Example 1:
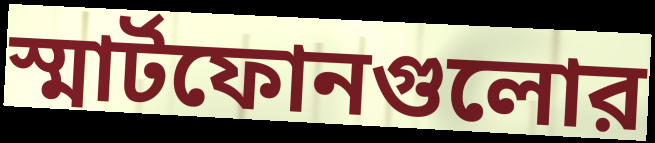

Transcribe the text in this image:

স্মার্টফোনগুলোর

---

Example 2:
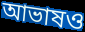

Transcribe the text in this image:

আভাষও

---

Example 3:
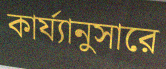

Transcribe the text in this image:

কার্য্যানুসারে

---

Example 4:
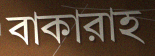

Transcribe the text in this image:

বাকারাহ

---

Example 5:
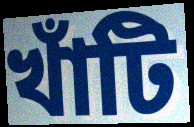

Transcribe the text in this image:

খাঁটি